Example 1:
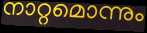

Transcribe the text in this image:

നാറ്റമൊന്നും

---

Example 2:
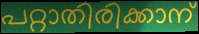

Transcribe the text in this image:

പറ്റാതിരിക്കാന്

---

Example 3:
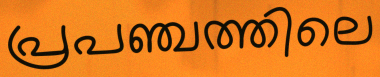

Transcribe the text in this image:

പ്രപഞ്ചത്തിലെ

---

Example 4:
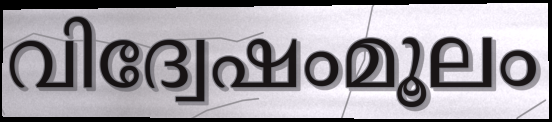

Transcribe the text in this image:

വിദ്വേഷംമൂലം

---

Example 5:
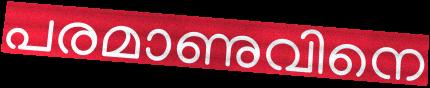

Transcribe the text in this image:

പരമാണുവിനെ